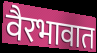
वैरभावात